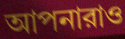
আপনারাও